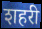
शहरी